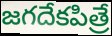
జగదేకపిత్రే